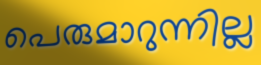
പെരുമാറുന്നില്ല